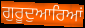
ਗੁਰੂਦੁਆਰਿਆਂ